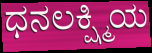
ಧನಲಕ್ಷ್ಮಿಯ